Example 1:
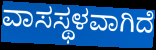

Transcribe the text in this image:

ವಾಸಸ್ಥಳವಾಗಿದೆ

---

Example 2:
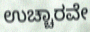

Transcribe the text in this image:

ಉಚ್ಚಾರವೇ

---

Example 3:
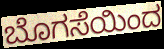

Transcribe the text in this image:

ಬೊಗಸೆಯಿಂದ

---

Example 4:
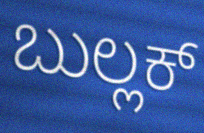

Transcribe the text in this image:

ಬುಲ್ಲಕ್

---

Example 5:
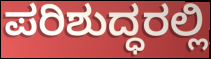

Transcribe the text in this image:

ಪರಿಶುದ್ಧರಲ್ಲಿ